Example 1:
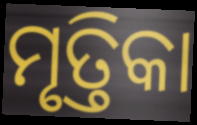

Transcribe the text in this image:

ମୃତ୍ତିକା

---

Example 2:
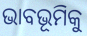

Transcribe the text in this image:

ଭାବଭୂମିକୁ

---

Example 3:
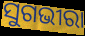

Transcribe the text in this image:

ସୁଗଭୀରା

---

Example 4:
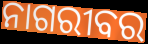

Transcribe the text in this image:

ନାଗରୀବର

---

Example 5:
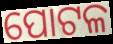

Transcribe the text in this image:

ପୋଟଳ